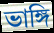
ভাঙ্গি